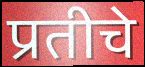
प्रतीचे